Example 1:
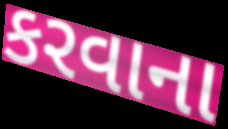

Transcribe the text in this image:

કરવાના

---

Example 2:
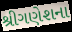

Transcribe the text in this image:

શ્રીગણેશના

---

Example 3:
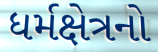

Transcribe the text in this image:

ધર્મક્ષેત્રનો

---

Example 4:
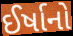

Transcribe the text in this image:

ઈર્ષાનો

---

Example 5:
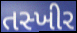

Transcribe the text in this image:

તસ્ખીર